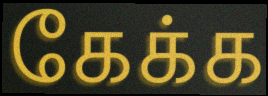
கேக்க